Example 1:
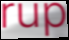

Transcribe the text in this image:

rup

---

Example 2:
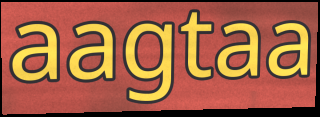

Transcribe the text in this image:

aagtaa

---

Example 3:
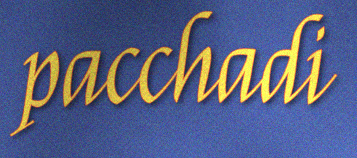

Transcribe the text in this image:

pacchadi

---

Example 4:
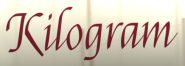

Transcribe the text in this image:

Kilogram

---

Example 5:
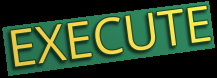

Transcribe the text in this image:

EXECUTE